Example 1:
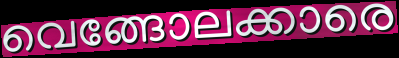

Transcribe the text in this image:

വെങ്ങോലക്കാരെ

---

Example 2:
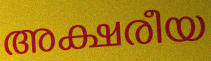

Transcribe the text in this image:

അക്ഷരീയ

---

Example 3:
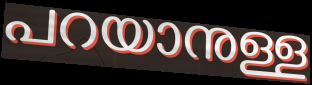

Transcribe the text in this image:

പറയാനുള്ള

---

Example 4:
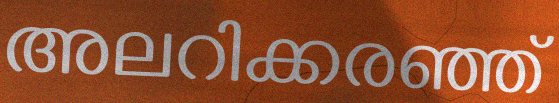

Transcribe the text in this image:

അലറിക്കരഞ്ഞ്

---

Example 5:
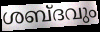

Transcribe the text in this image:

ശബ്ദവും